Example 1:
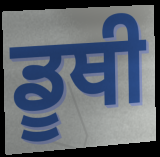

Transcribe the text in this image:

ਡੂਥੀ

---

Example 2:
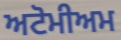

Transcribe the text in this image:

ਅਟੋਮੀਅਮ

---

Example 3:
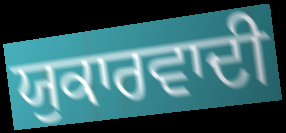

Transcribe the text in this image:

ਯੁਕਾਰਵਾਦੀ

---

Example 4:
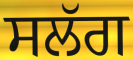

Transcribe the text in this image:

ਸਲੱਗ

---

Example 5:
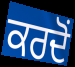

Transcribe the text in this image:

ਕਰਦੋਂ